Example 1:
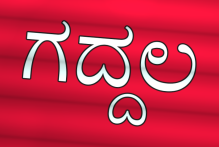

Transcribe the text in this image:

ಗದ್ದಲ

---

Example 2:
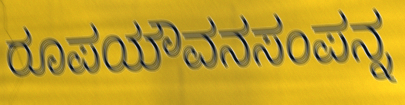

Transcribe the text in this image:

ರೂಪಯೌವನಸಂಪನ್ನ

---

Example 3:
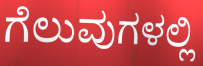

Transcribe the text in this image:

ಗೆಲುವುಗಳಲ್ಲಿ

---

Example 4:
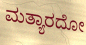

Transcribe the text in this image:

ಮತ್ಯಾರದೋ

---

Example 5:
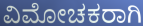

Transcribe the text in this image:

ವಿಮೋಚಕರಾಗಿ